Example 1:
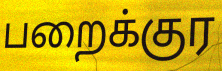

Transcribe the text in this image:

பறைக்குர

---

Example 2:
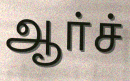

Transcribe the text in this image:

ஆர்ச்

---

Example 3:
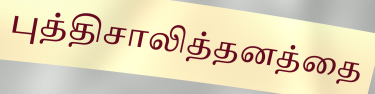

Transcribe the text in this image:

புத்திசாலித்தனத்தை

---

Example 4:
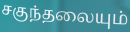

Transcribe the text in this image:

சகுந்தலையும்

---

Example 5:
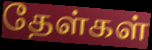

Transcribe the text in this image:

தேள்கள்